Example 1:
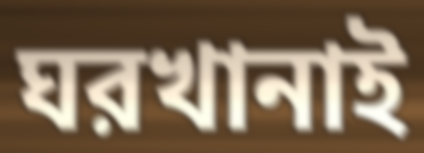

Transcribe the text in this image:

ঘরখানাই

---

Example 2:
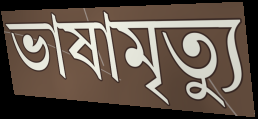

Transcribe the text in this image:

ভাষামৃত্যু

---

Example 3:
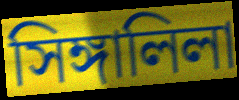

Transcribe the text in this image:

সিঙ্গালিলা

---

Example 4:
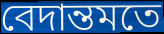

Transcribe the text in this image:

বেদান্তমতে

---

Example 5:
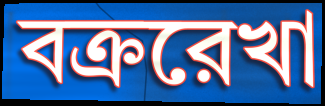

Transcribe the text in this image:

বক্ররেখা